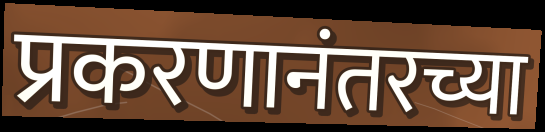
प्रकरणानंतरच्या